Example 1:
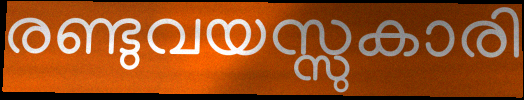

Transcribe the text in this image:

രണ്ടുവയസ്സുകാരി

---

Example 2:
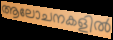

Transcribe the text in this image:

ആലോചനകളിൽ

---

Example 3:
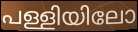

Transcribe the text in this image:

പള്ളിയിലോ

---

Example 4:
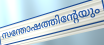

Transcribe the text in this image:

സന്തോഷത്തിന്റേയും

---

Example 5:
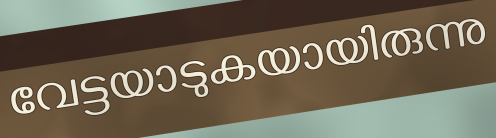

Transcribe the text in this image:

വേട്ടയാടുകയായിരുന്നു